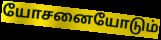
யோசனையோடும்